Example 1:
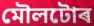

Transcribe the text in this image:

মৌলটোৰ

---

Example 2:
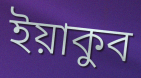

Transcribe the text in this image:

ইয়াকুব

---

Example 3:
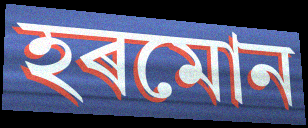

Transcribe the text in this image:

হৰমোন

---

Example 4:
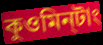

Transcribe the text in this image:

কুওমিন্‌টাং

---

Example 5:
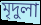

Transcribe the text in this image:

মৃদুলা